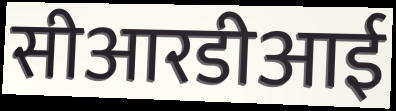
सीआरडीआई